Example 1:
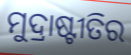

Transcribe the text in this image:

ମୁଦ୍ରାଷ୍ଟୀତିର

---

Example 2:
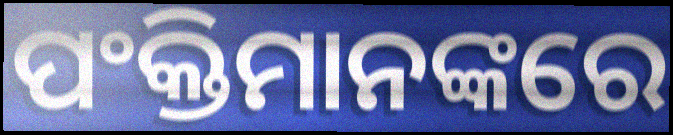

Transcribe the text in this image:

ପଂକ୍ତିମାନଙ୍କରେ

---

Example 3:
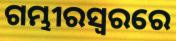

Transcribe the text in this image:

ଗମ୍ଭୀରସ୍ୱରରେ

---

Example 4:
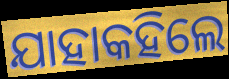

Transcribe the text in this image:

ଯାହାକହିଲେ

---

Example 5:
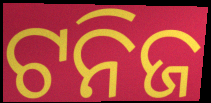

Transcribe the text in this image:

ଟନିଜ